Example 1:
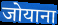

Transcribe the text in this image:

जोयाना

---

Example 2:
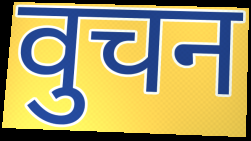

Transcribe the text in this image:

वुचन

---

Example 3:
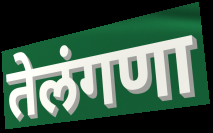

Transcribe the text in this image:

तेलंगणा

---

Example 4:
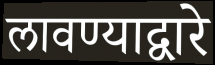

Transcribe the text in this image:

लावण्याद्वारे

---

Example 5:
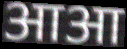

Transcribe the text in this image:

आआ